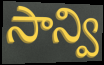
సాన్వి